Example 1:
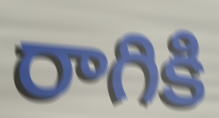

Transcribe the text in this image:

రాగికి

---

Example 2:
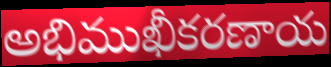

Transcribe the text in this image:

అభిముఖీకరణాయ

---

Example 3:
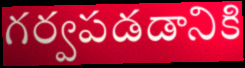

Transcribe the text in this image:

గర్వపడడానికి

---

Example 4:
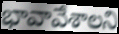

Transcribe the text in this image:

భావావేశాలని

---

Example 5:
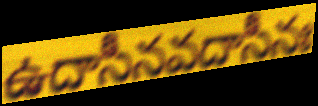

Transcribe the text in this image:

ఉదాసీనవదాసీనః